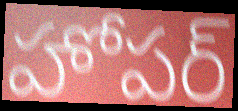
హోపర్